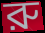
ৰু